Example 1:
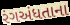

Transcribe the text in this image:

રંગઅંધતાના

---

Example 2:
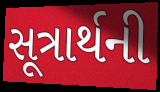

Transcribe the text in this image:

સૂત્રાર્થની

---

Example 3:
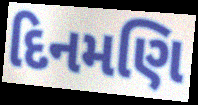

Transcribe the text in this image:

દિનમણિ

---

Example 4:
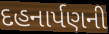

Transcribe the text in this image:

દહનાર્પણની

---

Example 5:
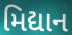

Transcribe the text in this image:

મિદ્યાન